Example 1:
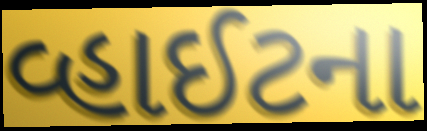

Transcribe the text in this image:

વ્હાઈટના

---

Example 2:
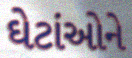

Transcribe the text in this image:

ઘેટાંઓને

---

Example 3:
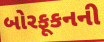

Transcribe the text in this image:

બોરફૂકનની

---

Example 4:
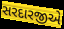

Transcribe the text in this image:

સરદારજીએ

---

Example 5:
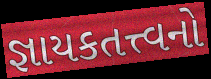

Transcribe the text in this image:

જ્ઞાયકતત્ત્વનો